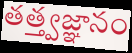
తత్త్వజ్ఞానం